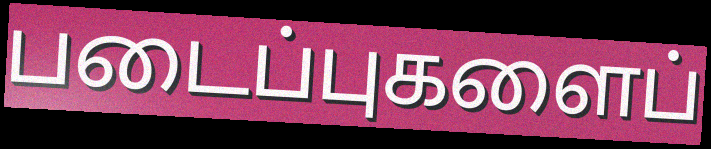
படைப்புகளைப்